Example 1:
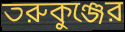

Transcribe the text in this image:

তরুকুঞ্জের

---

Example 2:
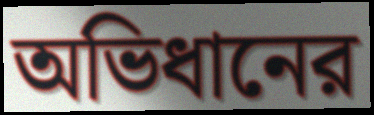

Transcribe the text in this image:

অভিধানের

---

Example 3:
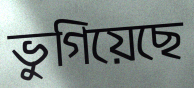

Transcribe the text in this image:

ভুগিয়েছে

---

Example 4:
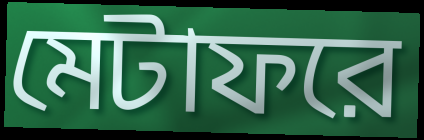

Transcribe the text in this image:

মেটাফরে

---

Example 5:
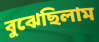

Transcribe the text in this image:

বুঝেছিলাম